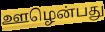
ஊழென்பது